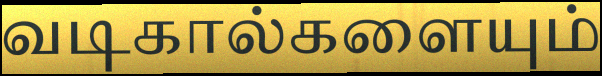
வடிகால்களையும்